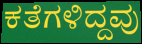
ಕತೆಗಳಿದ್ದವು